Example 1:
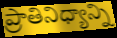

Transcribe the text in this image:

ప్రాతినిధ్యాన్ని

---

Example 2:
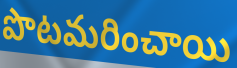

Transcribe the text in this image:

పొటమరించాయి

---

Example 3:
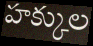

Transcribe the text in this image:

హక్కుల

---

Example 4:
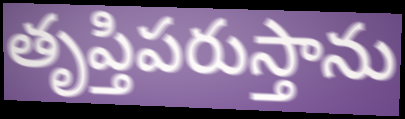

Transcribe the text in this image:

తృప్తిపరుస్తాను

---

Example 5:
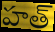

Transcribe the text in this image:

హత్